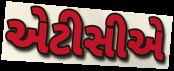
એટીસીએ